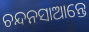
ଚନ୍ଦନସାଆନ୍ତେ